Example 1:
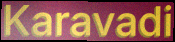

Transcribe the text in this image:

Karavadi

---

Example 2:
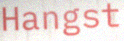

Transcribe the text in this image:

Hangst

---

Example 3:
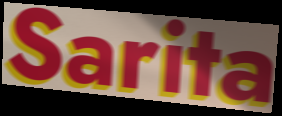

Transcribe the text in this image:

Sarita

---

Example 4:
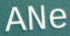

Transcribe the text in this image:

ANe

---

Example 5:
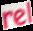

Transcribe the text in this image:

rel